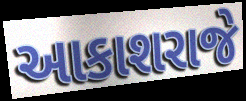
આકાશરાજે